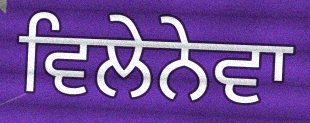
ਵਿਲੇਨੇਵਾ